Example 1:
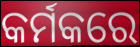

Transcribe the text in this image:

କର୍ମକରେ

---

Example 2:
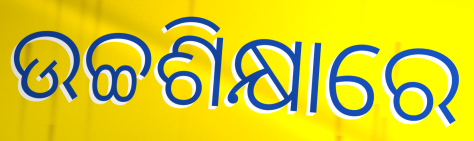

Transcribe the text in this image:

ଉଚ୍ଚଶିକ୍ଷାରେ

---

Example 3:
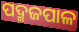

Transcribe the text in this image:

ପଦ୍ମଜପାଳ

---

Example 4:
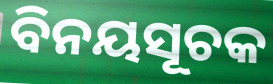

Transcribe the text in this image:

ବିନୟସୂଚକ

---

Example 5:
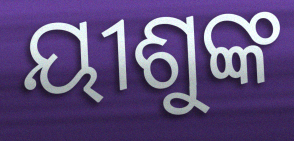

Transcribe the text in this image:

ୟୀଶୁଙ୍କ